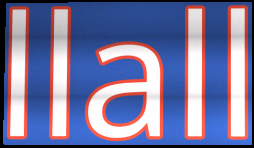
llall